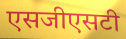
एसजीएसटी